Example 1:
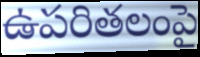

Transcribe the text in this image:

ఉపరితలంపై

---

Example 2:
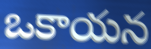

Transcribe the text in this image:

ఒకాయన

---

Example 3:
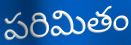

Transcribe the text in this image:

పరిమితం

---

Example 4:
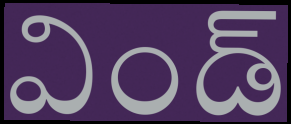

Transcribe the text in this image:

విండ్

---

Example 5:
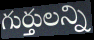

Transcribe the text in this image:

గుర్తులన్ని